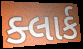
ક્લાર્ક